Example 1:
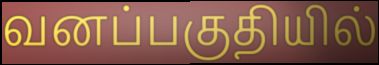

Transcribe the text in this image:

வனப்பகுதியில்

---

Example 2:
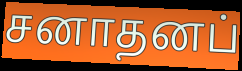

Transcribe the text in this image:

சனாதனப்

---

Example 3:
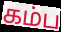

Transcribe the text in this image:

கம்ப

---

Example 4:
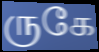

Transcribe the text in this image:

ருகே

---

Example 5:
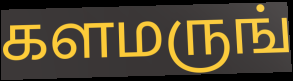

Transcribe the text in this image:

களமருங்